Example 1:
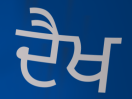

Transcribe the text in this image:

ਦੈਖ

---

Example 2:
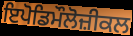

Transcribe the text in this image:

ਇਪੋਡਿਮੌਲੋਜ਼ੀਕਲ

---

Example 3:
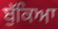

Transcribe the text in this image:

ਬੁੱਕਿਆ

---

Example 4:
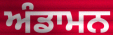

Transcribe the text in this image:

ਅੰਡਾਮਨ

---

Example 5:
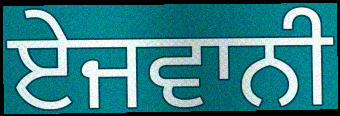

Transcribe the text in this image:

ਏਜਵਾਨੀ